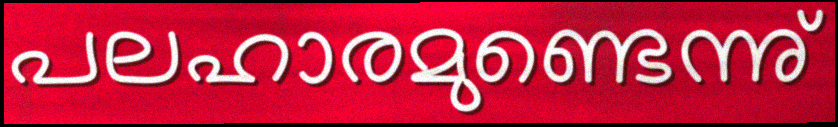
പലഹാരമുണ്ടെന്നു്